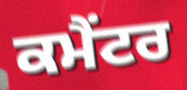
ਕਮੈਂਟਰ